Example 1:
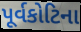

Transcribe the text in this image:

પૂર્વકોટિના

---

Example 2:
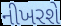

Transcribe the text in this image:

નીખરશે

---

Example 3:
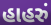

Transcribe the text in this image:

હાહરું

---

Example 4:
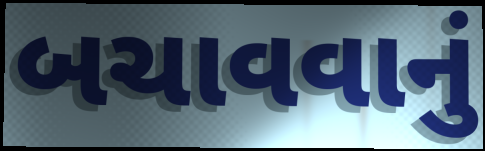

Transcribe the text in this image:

બચાવવાનું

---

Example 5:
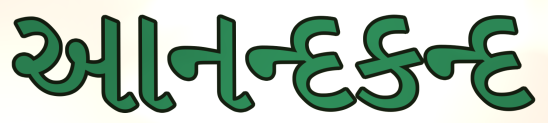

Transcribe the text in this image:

આનન્દકન્દ